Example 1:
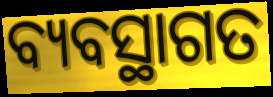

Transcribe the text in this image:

ବ୍ଯବସ୍ଥାଗତ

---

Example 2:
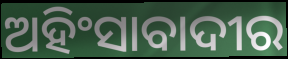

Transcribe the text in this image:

ଅହିଂସାବାଦୀର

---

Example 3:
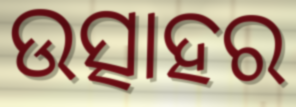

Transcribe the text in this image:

ଉତ୍ସାହର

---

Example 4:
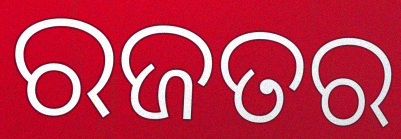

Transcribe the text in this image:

ରଜତର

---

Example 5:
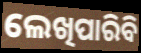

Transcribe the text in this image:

ଲେଖିପାରିବି